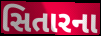
સિતારના